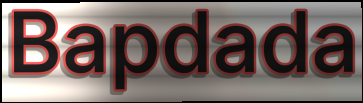
Bapdada